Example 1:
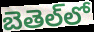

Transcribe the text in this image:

బెతెల్‌లో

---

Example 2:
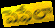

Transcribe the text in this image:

షెఫేలా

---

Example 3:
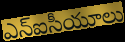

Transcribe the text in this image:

ఎన్ఐసీయూలు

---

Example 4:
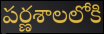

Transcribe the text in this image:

పర్ణశాలలోకి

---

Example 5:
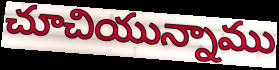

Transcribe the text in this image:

చూచియున్నాము